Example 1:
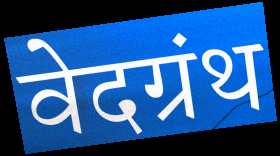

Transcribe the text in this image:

वेदग्रंथ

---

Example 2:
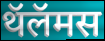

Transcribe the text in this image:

थॅलॅमस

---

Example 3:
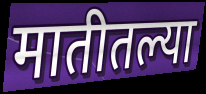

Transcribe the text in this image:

मातीतल्या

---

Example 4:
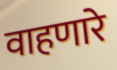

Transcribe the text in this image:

वाहणारे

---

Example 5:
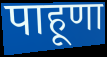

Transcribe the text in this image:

पाहूणा